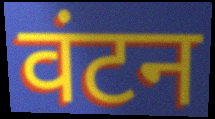
वंटन